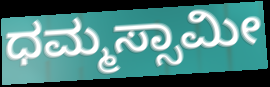
ಧಮ್ಮಸ್ಸಾಮೀ